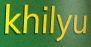
khilyu